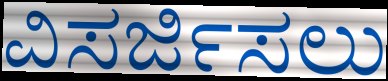
ವಿಸರ್ಜಿಸಲು